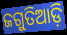
ଜଗୁତିଆଡ଼ି